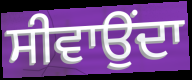
ਸੀਵਾਉਂਦਾ